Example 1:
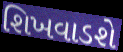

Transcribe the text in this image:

શિખવાડશે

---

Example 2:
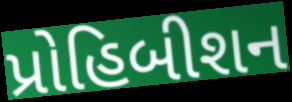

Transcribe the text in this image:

પ્રોહિબીશન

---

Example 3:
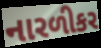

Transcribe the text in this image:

નારળીકર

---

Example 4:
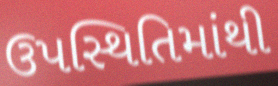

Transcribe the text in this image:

ઉપસ્થિતિમાંથી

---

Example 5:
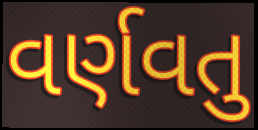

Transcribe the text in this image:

વર્ણવતુ